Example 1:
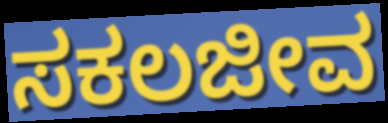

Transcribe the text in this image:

ಸಕಲಜೀವ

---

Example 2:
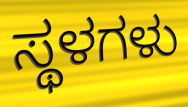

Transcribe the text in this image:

ಸ್ಥಳಗಳು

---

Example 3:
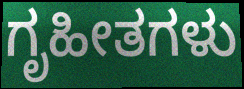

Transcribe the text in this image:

ಗೃಹೀತಗಳು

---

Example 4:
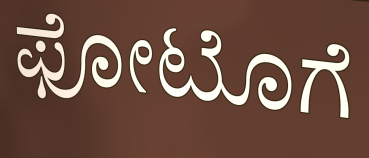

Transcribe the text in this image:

ಫೋಟೊಗೆ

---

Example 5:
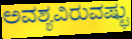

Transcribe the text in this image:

ಅವಶ್ಯವಿರುವಷ್ಟು